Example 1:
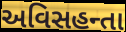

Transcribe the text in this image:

અવિસહન્તા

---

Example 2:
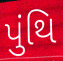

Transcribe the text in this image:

પુંથિ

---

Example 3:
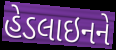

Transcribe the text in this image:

હેડલાઇનને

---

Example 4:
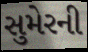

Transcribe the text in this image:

સુમેરની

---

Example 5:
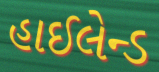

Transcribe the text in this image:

હાઈલેન્ડ